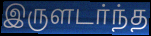
இருளடர்ந்த